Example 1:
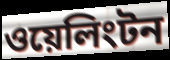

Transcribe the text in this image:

ওয়েলিংটন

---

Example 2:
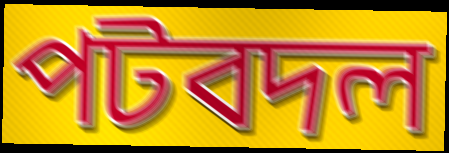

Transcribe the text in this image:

পটবদল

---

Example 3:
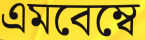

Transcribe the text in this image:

এমবেম্বে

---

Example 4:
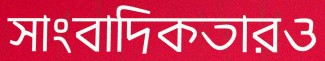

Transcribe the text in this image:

সাংবাদিকতারও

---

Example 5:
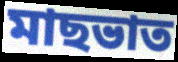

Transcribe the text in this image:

মাছভাত